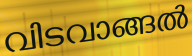
വിടവാങ്ങൽ